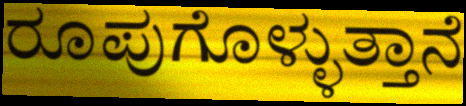
ರೂಪುಗೊಳ್ಳುತ್ತಾನೆ